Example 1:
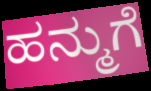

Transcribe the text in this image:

ಹನ್ಮುಗೆ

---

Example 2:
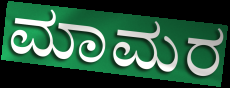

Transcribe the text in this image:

ಮಾಮರ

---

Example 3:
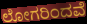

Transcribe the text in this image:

ಲೋಗರಿಂದವೆ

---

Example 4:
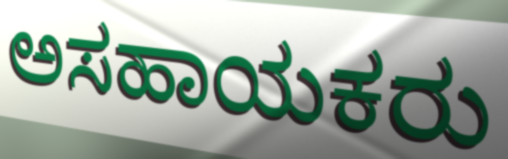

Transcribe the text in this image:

ಅಸಹಾಯಕರು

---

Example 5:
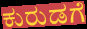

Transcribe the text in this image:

ಕುರುಡಗೆ